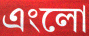
এংলো